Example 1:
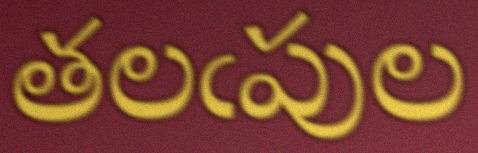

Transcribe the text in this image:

తలఁపుల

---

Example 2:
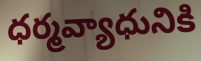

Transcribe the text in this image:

ధర్మవ్యాధునికి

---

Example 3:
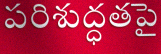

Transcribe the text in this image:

పరిశుద్ధతపై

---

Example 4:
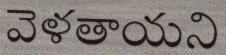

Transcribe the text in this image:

వెళతాయని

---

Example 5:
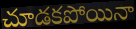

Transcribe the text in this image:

చూడకపోయినా